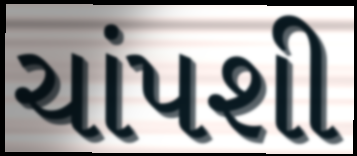
ચાંપશી